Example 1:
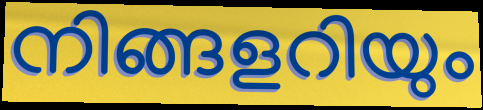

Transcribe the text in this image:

നിങ്ങളറിയും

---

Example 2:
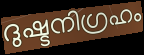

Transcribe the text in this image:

ദുഷ്ടനിഗ്രഹം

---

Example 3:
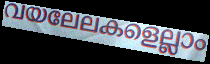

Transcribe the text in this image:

വയലേലകളെല്ലാം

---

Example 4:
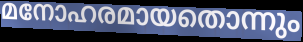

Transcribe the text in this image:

മനോഹരമായതൊന്നും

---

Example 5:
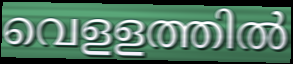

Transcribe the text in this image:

വെളളത്തിൽ